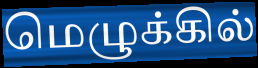
மெழுக்கில்